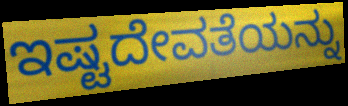
ಇಷ್ಟದೇವತೆಯನ್ನು